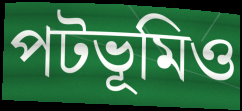
পটভূমিও